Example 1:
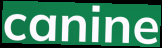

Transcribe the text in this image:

canine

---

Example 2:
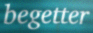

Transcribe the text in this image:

begetter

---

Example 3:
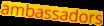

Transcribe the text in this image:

ambassadors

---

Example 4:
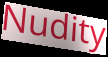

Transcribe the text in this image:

Nudity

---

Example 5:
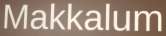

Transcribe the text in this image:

Makkalum